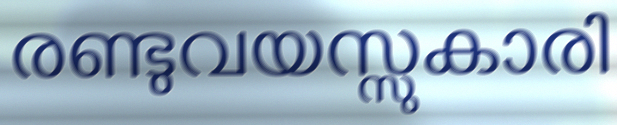
രണ്ടുവയസ്സുകാരി